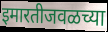
इमारतीजवळच्या